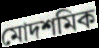
মোদশমিক